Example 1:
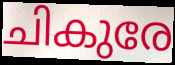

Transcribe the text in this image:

ചികുരേ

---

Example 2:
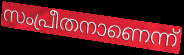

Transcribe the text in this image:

സംപ്രീതനാണെന്ന്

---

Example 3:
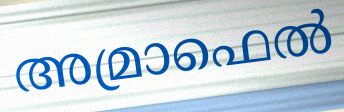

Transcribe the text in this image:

അമ്രാഫെൽ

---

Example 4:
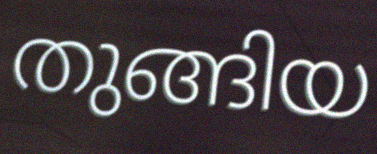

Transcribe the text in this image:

തുങ്ങിയ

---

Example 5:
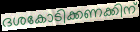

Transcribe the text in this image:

ദശകോടിക്കണക്കിന്